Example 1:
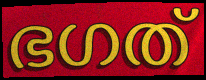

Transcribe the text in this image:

ഭഗത്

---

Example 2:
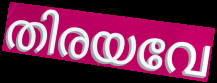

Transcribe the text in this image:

തിരയവേ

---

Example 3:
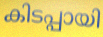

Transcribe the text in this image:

കിടപ്പായി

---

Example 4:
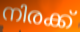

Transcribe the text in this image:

നിരക്ക്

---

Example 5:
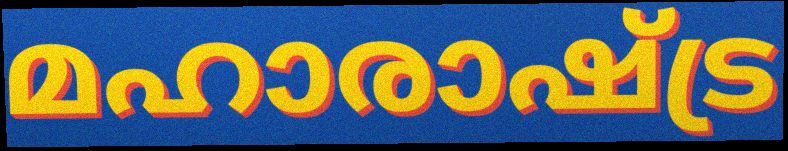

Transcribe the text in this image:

മഹാരാഷ്ട്ര